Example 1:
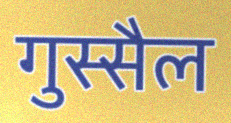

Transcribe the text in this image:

गुस्सैल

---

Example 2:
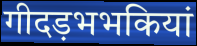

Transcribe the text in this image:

गीदड़भभकियां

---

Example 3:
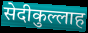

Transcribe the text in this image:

सेदीकुल्लाह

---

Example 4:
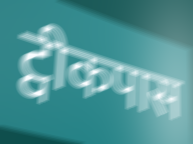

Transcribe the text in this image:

ट्वीकपास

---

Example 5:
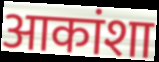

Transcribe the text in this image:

आकांशा